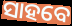
ସାହବେ